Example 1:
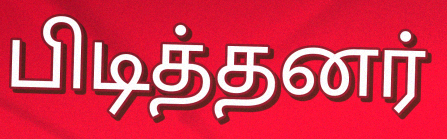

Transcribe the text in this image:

பிடித்தனர்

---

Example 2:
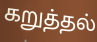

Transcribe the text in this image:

கறுத்தல்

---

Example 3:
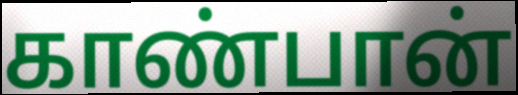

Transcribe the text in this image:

காண்பான்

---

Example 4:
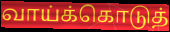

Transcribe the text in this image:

வாய்க்கொடுத்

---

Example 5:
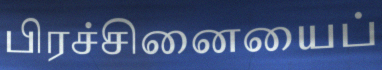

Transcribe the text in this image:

பிரச்சினையைப்